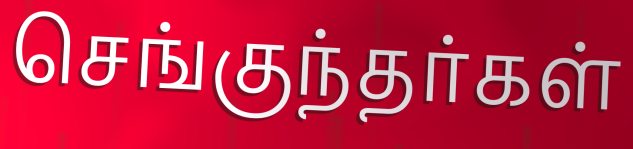
செங்குந்தர்கள்